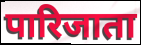
पारिजाता